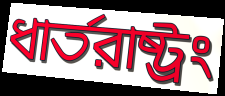
ধার্তরাষ্ট্রং